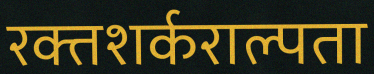
रक्तशर्कराल्पता